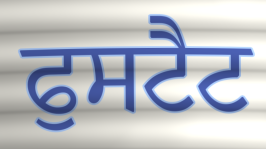
ਫੁਸਟੈਟ